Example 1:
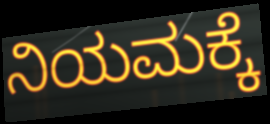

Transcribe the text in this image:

ನಿಯಮಕ್ಕೆ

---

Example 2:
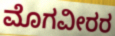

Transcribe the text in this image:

ಮೊಗವೀರರ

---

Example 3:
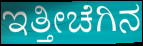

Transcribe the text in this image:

ಇತ್ತೀಚೆಗಿನ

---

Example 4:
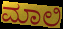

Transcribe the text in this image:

ಮಾಲಿ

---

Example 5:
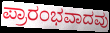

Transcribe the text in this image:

ಪ್ರಾರಂಭವಾದವು